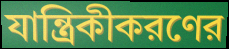
যান্ত্রিকীকরণের